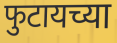
फुटायच्या